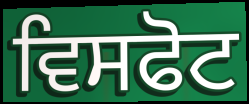
ਵਿਸਫੋਟ